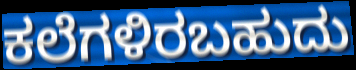
ಕಲೆಗಳಿರಬಹುದು